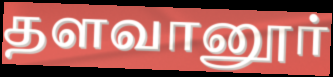
தளவானூர்